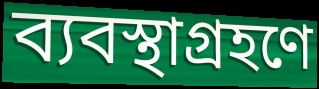
ব্যবস্থাগ্রহণে